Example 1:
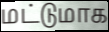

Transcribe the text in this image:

மட்டுமாக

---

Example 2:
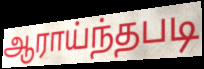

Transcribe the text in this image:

ஆராய்ந்தபடி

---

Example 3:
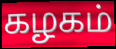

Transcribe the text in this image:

கழகம்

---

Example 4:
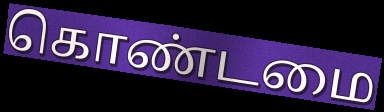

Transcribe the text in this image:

கொண்டமை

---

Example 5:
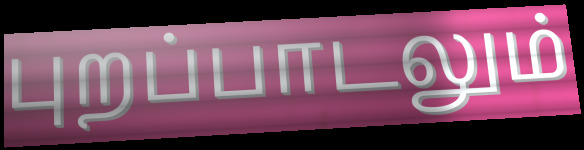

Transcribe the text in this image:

புறப்பாடலும்